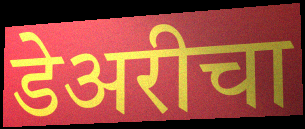
डेअरीचा